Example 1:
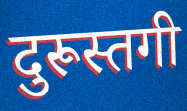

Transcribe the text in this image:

दुरूस्तगी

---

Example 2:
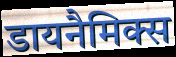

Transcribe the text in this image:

डायनैमिक्‍स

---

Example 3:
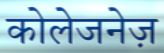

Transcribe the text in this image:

कोलेजनेज़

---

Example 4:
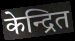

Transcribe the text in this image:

केन्द्रित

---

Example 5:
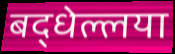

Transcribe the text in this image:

बद्धेल्लया